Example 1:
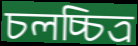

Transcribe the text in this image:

চলচ্চিত্র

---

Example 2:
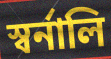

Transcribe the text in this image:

স্বর্নালি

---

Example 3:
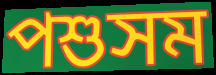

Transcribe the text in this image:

পশুসম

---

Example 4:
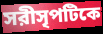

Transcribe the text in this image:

সরীসৃপটিকে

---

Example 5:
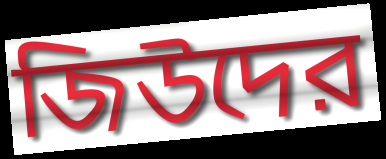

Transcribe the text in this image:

জিউদের